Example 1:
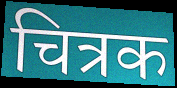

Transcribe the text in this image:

चित्रक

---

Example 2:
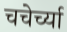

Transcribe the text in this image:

चचेर्च्या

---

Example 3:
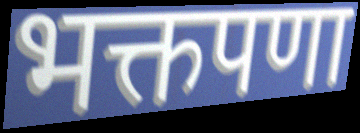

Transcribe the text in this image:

भक्तपणा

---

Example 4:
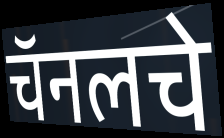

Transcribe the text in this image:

चॅनलचे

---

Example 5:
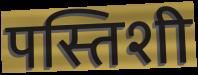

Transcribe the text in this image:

पस्तिशी